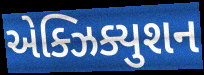
એક્ઝિક્યુશન